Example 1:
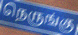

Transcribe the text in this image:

நெருங்கு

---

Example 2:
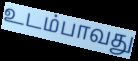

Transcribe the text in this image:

உடம்பாவது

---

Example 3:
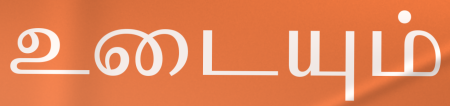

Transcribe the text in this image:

உடையும்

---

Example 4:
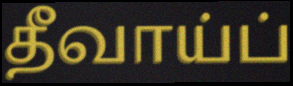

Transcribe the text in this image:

தீவாய்ப்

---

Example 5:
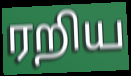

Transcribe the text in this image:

ரறிய